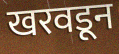
खरवडून